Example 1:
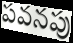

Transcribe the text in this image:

పవనపు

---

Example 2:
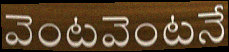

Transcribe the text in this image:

వెంటవెంటనే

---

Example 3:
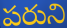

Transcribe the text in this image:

పరుని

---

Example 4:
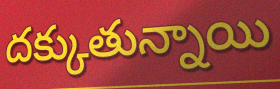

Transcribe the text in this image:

దక్కుతున్నాయి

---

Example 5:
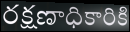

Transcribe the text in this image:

రక్షణాధికారికి